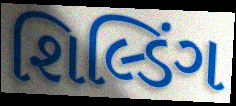
શિલ્ડિંગ